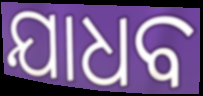
ଯାଧବ